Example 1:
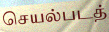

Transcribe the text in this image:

செயல்படத்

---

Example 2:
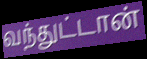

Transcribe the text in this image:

வந்துட்டான்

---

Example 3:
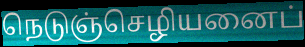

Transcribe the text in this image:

நெடுஞ்செழியனைப்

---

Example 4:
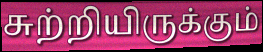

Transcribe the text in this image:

சுற்றியிருக்கும்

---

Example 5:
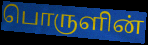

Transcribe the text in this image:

பொருளின்